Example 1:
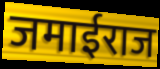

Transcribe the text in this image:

जमाईराज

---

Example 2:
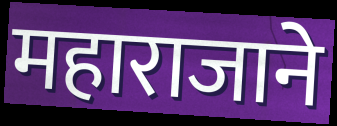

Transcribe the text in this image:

महाराजाने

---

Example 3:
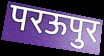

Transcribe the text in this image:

परऊपुर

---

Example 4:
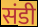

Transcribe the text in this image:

संडी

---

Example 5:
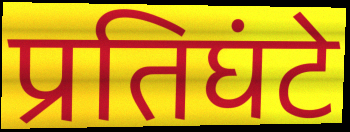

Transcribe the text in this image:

प्रतिघंटे